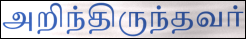
அறிந்திருந்தவர்